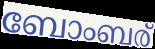
ബോംബര്